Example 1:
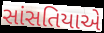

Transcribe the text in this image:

સાંસતિયાએ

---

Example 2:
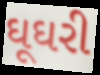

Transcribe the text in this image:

ઘૂઘરી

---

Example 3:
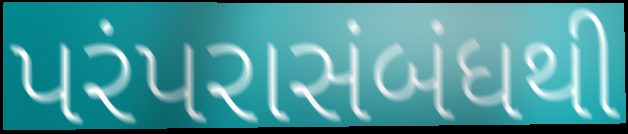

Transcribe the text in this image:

પરંપરાસંબંધથી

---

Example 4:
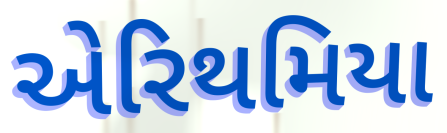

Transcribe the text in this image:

એરિથમિયા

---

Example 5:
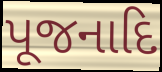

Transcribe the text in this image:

પૂજનાદિ